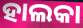
ହାଲକା